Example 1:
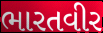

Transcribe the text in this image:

ભારતવીર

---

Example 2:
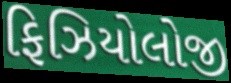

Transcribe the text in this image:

ફિઝિયોલોજી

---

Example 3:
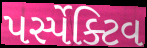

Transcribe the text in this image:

પર્સ્પેક્ટિવ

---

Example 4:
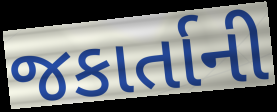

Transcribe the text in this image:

જકાર્તાની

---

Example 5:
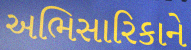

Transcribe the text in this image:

અભિસારિકાને